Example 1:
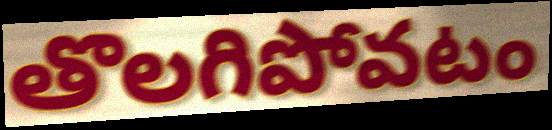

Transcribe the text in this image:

తొలగిపోవటం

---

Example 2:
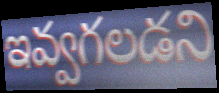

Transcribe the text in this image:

ఇవ్వగలడని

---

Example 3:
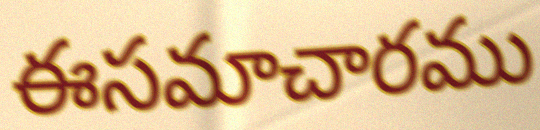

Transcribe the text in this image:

ఈసమాచారము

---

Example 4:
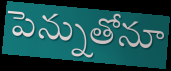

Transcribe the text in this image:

పెన్నుతోనూ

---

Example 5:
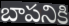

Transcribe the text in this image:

బాపనికి